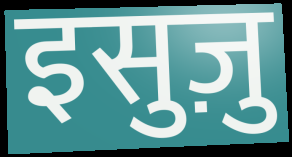
इसुज़ु